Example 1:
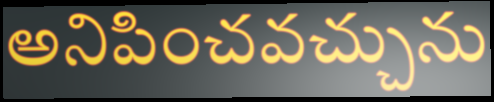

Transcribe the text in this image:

అనిపించవచ్చును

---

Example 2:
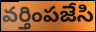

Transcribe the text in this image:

వర్తింపజేసి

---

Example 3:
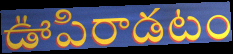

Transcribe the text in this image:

ఊపిరాడటం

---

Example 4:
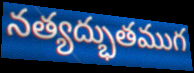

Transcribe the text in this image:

నత్యద్భుతముగ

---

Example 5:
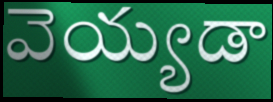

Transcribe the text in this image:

వెయ్యడా